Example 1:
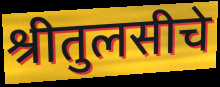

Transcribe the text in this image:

श्रीतुलसीचे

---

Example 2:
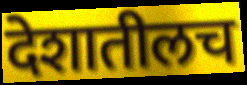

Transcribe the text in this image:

देशातीलच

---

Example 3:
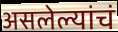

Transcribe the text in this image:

असलेल्यांचं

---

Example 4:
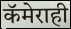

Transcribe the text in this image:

कॅमेराही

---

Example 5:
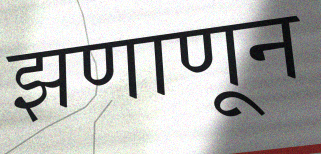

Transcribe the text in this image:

झणाणून